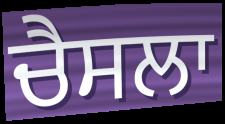
ਚੈਸਲਾ